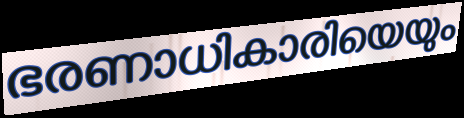
ഭരണാധികാരിയെയും